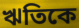
ঋতিকে